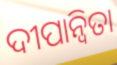
ଦୀପାନ୍ୱିତା